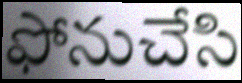
ఫోనుచేసి